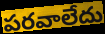
పరవాలేదు